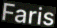
Faris